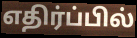
எதிர்ப்பில்